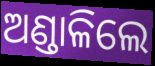
ଅଣ୍ଡାଳିଲେ